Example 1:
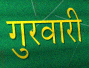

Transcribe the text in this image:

गुरवारी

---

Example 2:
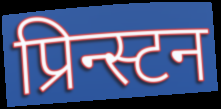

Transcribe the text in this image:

प्रिन्स्टन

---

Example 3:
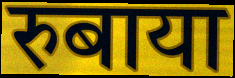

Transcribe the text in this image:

रुबाया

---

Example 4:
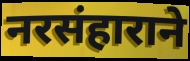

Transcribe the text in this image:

नरसंहाराने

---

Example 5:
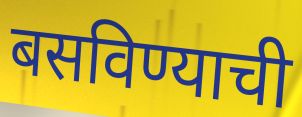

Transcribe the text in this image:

बसविण्याची